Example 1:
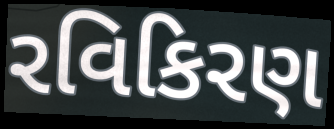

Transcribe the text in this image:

રવિકિરણ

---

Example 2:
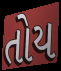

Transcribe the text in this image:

તોય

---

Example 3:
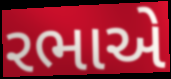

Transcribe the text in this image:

રભાએ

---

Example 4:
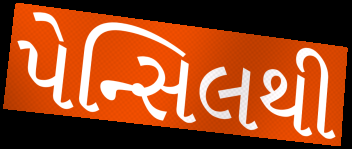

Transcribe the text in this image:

પેન્સિલથી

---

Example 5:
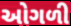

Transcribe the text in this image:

ઓગળી